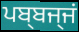
ਪਬ੍ਬਜ੍ਜਂ